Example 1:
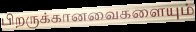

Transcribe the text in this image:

பிறருக்கானவைகளையும்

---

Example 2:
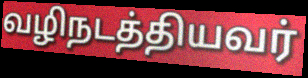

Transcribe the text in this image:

வழிநடத்தியவர்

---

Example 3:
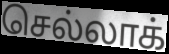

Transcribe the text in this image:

செல்லாக்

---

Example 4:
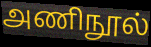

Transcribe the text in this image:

அணிநூல்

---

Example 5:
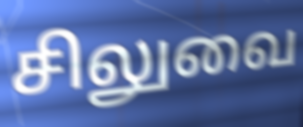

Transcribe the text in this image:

சிலுவை